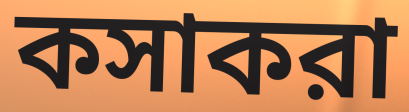
কসাকরা